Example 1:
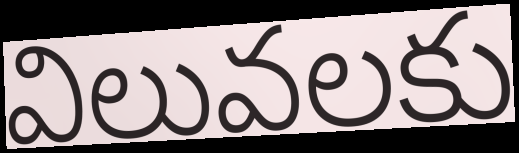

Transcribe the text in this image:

విలువలకు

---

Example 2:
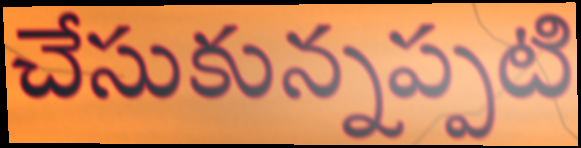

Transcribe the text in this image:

చేసుకున్నప్పటి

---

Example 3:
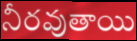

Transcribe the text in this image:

నీరవుతాయి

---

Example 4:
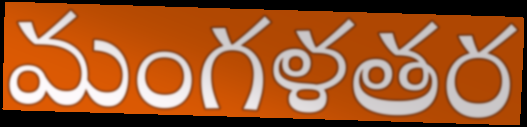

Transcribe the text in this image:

మంగళతర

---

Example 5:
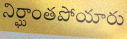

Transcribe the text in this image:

నిర్ఘాంతపోయారు